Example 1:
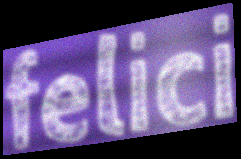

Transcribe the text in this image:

felici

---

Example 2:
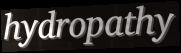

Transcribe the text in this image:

hydropathy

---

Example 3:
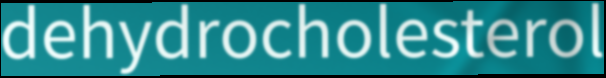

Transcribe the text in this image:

dehydrocholesterol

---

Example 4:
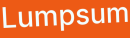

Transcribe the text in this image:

Lumpsum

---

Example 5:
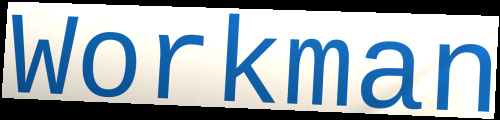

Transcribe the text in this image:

Workman